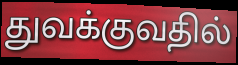
துவக்குவதில்